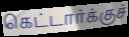
கெட்டார்க்குச்